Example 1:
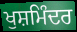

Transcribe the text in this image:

ਖੁਸ਼ਮਿੰਦਰ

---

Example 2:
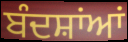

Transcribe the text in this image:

ਬੰਦਸ਼ਾਂਆਂ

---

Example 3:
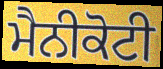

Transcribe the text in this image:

ਮੈਨੀਕੋਟੀ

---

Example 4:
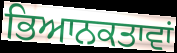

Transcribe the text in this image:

ਭਿਆਨਕਤਾਵਾਂ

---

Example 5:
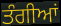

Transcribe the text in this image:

ਤੰਗੀਆਂ